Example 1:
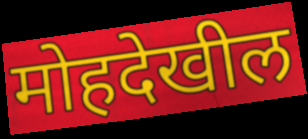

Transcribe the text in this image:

मोहदेखील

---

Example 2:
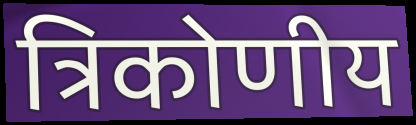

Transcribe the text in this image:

त्रिकोणीय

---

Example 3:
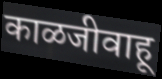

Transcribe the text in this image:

काळजीवाहू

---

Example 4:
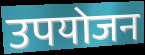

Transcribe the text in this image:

उपयोजन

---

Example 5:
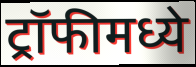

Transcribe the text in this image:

ट्रॉफीमध्ये